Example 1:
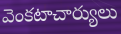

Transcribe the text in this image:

వెంకటాచార్యులు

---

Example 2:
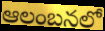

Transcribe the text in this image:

ఆలంబనలో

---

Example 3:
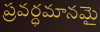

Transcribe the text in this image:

ప్రవర్ధమానమై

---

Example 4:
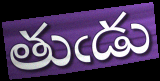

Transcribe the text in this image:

తుఁడు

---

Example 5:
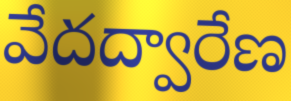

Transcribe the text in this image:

వేదద్వారేణ